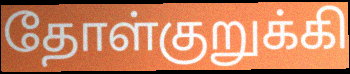
தோள்குறுக்கி